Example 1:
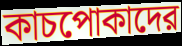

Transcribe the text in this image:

কাচপোকাদের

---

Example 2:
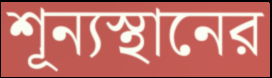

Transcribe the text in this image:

শূন্যস্থানের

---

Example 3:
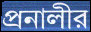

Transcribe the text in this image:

প্রনালীর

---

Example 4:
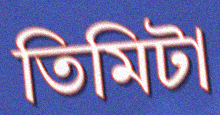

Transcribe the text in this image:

তিমিটা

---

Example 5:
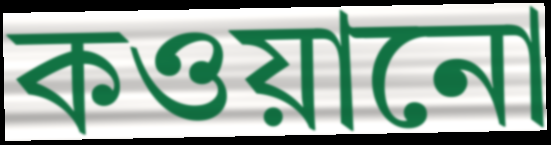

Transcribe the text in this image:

কওয়ানো